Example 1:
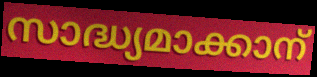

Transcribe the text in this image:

സാദ്ധ്യമാക്കാന്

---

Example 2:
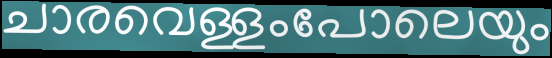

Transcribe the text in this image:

ചാരവെള്ളംപോലെയും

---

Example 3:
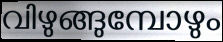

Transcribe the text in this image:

വിഴുങ്ങുമ്പോഴും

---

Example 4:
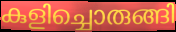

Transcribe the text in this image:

കുളിച്ചൊരുങ്ങി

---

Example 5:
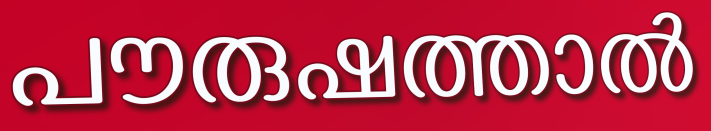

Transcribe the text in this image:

പൗരുഷത്താൽ